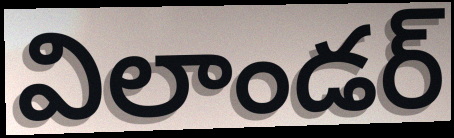
విలాండర్